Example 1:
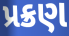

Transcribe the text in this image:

પ્રક્રણ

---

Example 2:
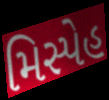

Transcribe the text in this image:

મિસ્પેહ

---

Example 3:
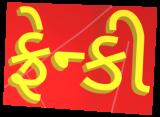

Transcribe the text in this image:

ફ્રેન્કી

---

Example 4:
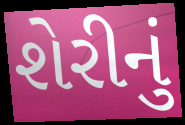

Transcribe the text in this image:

શેરીનું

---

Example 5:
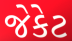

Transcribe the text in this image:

જેકેટ